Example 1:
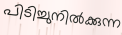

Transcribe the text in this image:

പിടിച്ചുനിൽക്കുന്ന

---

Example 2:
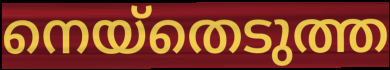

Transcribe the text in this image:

നെയ്തെടുത്ത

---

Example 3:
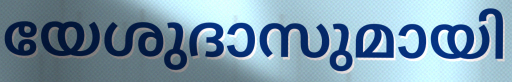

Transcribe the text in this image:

യേശുദാസുമായി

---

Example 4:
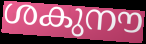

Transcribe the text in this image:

ശകുനൗ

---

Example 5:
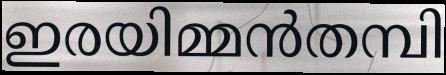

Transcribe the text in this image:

ഇരയിമ്മൻതമ്പി